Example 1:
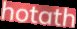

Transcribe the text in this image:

hotath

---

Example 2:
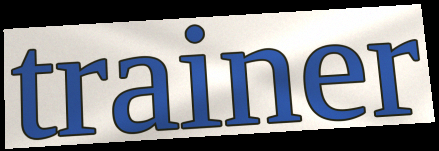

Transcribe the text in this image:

trainer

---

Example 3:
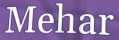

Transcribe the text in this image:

Mehar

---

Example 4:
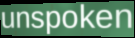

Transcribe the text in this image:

unspoken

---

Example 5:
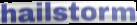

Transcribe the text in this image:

hailstorm